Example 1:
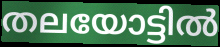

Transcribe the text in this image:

തലയോട്ടിൽ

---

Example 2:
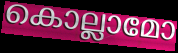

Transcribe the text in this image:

കൊല്ലാമോ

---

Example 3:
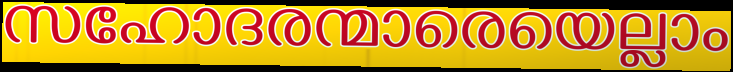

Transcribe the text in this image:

സഹോദരന്മാരെയെല്ലാം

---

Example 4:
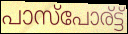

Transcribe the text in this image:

പാസ്പോര്ട്ട്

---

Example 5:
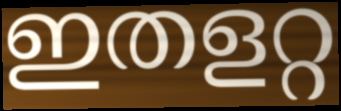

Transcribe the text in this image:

ഇതളറ്റ